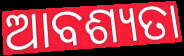
ଆବଶ୍ୟତା